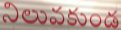
నిలువకుండ